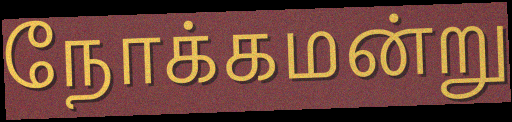
நோக்கமன்று